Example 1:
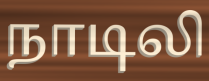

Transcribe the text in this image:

நாடிலி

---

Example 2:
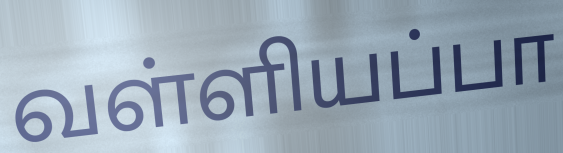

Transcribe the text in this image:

வள்ளியப்பா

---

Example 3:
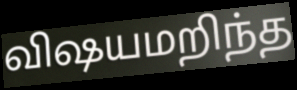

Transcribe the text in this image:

விஷயமறிந்த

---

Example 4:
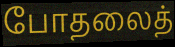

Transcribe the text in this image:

போதலைத்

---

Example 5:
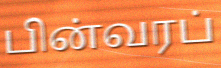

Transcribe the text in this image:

பின்வரப்